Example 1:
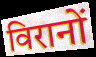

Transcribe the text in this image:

विरानों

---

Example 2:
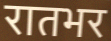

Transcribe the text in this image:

रातभर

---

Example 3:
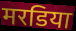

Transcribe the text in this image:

मरडिया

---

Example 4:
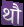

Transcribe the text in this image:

थौ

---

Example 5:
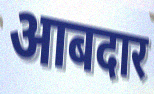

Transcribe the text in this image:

आबदार